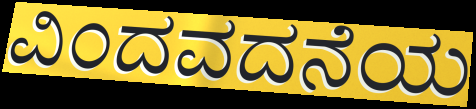
ವಿಂದವದನೆಯ